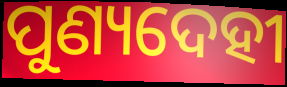
ପୁଣ୍ୟଦେହୀ